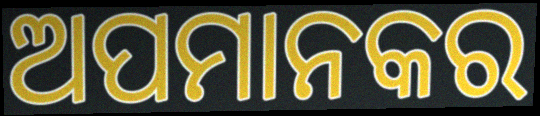
ଅପମାନକର